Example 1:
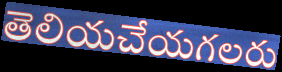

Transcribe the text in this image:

తెలియచేయగలరు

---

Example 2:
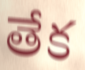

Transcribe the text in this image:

తేక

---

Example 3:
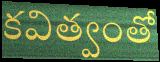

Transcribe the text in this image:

కవిత్వంతో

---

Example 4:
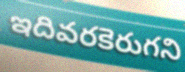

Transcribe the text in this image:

ఇదివరకెరుగని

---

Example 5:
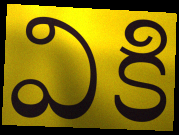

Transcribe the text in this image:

వికి